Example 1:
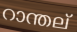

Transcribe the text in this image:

റാന്തല്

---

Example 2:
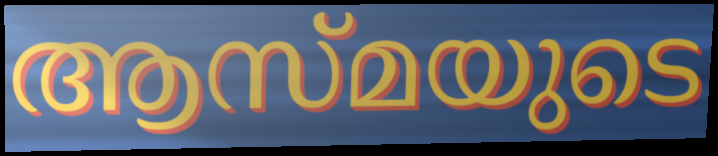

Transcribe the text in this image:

ആസ്മയുടെ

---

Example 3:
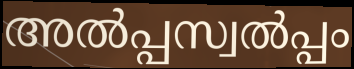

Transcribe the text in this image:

അൽപ്പസ്വൽപ്പം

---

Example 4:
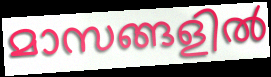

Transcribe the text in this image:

മാസങ്ങളിൽ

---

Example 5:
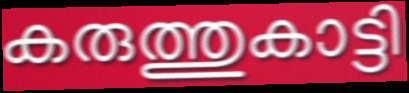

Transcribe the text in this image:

കരുത്തുകാട്ടി